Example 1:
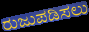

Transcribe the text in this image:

ರುಜುಪಡಿಸಲು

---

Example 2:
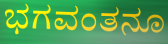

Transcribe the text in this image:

ಭಗವಂತನೂ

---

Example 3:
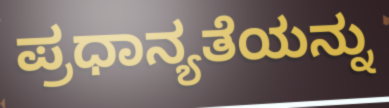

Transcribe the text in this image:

ಪ್ರಧಾನ್ಯತೆಯನ್ನು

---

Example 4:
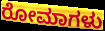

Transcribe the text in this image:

ರೋಮಾಗಳು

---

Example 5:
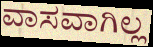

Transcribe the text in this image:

ವಾಸವಾಗಿಲ್ಲ